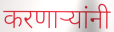
करणार्‍यांनी